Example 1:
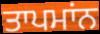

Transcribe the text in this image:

ਤਾਪਮਾਂਨ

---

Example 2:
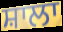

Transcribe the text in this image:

ਸ਼ਾਲਾ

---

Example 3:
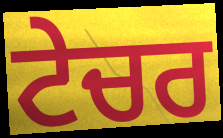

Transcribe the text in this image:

ਟੇਚਰ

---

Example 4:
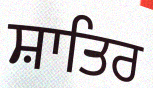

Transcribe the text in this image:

ਸ਼ਾਤਿਰ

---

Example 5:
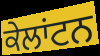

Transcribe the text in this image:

ਕੇਲਾਂਟਨ